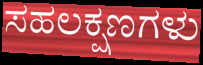
ಸಹಲಕ್ಷಣಗಳು